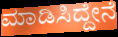
ಮಾಡಿಸಿದ್ದೇನೆ